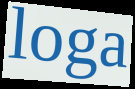
loga